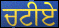
ਚਟੀਏ